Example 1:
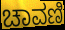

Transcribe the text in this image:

ಚಾವಣಿ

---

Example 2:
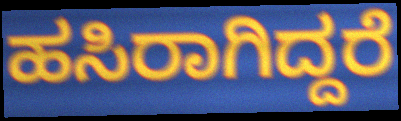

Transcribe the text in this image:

ಹಸಿರಾಗಿದ್ದರೆ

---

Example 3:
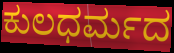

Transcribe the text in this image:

ಕುಲಧರ್ಮದ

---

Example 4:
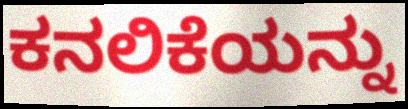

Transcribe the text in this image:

ಕನಲಿಕೆಯನ್ನು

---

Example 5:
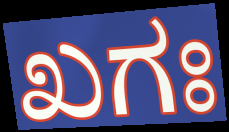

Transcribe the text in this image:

ಖಗಃ